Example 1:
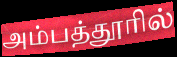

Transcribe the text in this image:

அம்பத்தூரில்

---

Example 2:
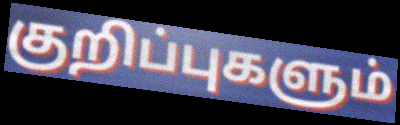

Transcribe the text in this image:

குறிப்புகளும்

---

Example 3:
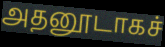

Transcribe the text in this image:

அதனூடாகச்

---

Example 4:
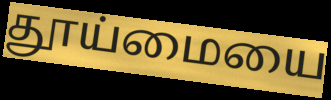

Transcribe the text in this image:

தூய்மையை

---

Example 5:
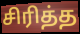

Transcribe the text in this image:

சிரித்த